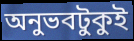
অনুভবটুকুই